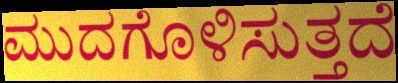
ಮುದಗೊಳಿಸುತ್ತದೆ